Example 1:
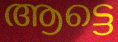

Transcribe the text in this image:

ആട്ടെ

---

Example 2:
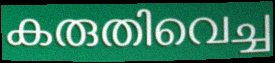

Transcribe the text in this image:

കരുതിവെച്ച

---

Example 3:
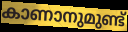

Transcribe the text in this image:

കാണാനുമുണ്ട്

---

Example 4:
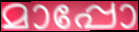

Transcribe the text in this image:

മാപ്പോ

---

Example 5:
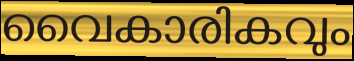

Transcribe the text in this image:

വൈകാരികവും